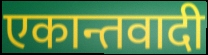
एकान्तवादी